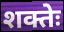
शक्तेः